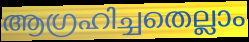
ആഗ്രഹിച്ചതെല്ലാം